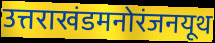
उत्तराखंडमनोरंजनयूथ